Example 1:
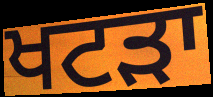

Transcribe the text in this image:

ਖਟੜਾ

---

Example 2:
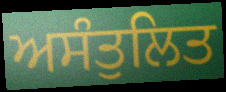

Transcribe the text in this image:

ਅਸੰਤੁਲਿਤ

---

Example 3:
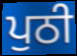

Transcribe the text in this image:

ਪੁਠੀ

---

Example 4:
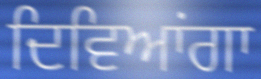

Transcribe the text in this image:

ਦਿਵਿਆਂਗਾ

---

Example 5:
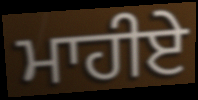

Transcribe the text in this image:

ਮਾਹੀਏ